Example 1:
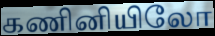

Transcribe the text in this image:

கணினியிலோ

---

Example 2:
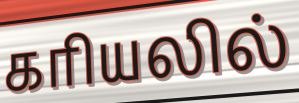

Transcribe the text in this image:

கரியலில்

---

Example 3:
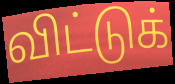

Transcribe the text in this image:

விட்டுக்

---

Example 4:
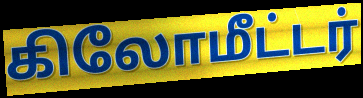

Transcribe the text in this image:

கிலோமீட்டர்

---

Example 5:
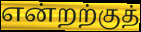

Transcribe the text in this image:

என்றற்குத்